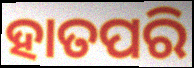
ହାତପରି